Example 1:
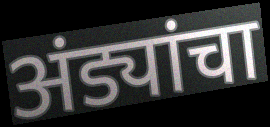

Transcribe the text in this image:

अंड्यांचा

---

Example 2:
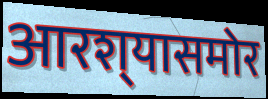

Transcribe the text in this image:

आरश्यासमोर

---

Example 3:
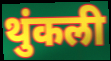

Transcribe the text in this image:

थुंकली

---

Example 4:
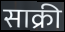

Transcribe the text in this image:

साक्री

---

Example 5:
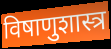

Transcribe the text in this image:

विषाणुशास्त्र